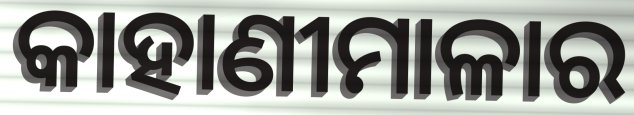
କାହାଣୀମାଳାର